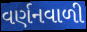
વર્ણનવાળી